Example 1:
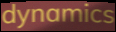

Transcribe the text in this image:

dynamics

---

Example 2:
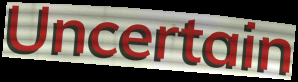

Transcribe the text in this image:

Uncertain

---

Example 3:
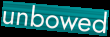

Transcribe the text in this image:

unbowed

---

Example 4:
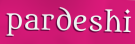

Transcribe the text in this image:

pardeshi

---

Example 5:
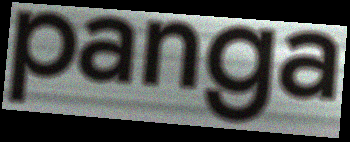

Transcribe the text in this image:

panga